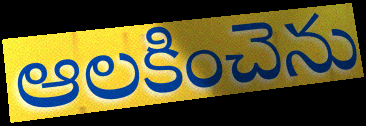
ఆలకించెను